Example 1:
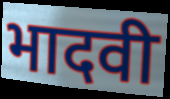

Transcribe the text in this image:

भादवी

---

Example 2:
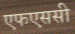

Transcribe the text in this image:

एफएससी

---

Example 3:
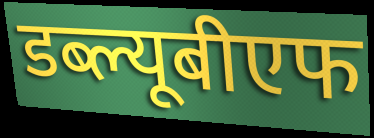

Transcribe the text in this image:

डब्ल्यूबीएफ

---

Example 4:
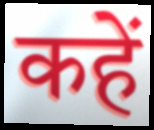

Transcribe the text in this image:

कहें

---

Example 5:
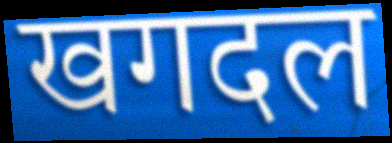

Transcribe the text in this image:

खगदल